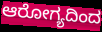
ಆರೋಗ್ಯದಿಂದ